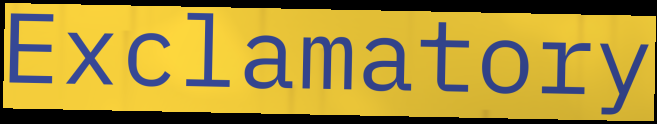
Exclamatory